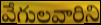
వేగులవారిని